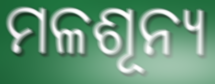
ମଳଶୂନ୍ୟ